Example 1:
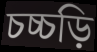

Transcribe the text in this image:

চচ্চড়ি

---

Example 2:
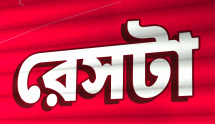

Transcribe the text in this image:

রেসটা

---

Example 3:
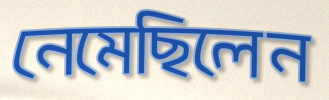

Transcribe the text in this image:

নেমেছিলেন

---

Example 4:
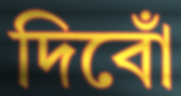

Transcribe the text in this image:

দিবোঁ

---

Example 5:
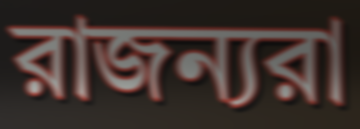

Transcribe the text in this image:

রাজন্যরা